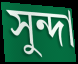
সুন্দা